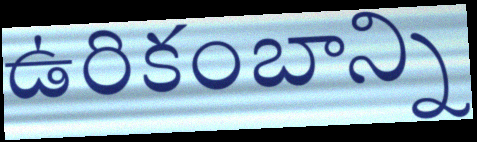
ఉరికంబాన్ని